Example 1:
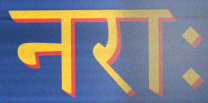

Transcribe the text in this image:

नराः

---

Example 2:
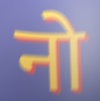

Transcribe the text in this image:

नो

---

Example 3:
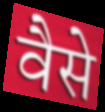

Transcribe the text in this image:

वैसे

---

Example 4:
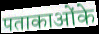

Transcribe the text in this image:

पताकाओंके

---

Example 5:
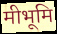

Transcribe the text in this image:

मीभूमि